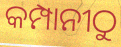
କମ୍ପାନୀଠୁ